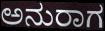
ಅನುರಾಗ